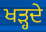
ਖੜ੍ਹਦੇ